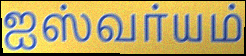
ஐஸ்வர்யம்